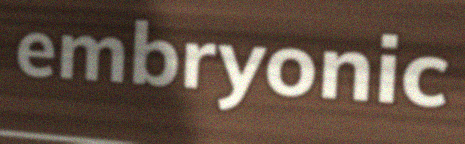
embryonic